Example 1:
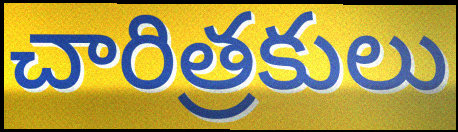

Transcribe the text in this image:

చారిత్రకులు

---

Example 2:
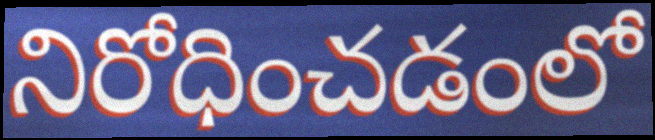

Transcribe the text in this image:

నిరోధించడంలో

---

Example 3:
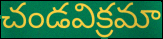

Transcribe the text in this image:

చండవిక్రమా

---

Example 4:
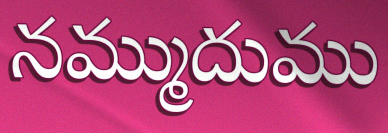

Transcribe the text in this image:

నమ్ముదుము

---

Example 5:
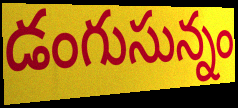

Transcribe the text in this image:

డంగుసున్నం